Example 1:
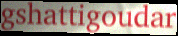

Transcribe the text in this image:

gshattigoudar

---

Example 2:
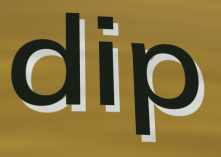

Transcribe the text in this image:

dip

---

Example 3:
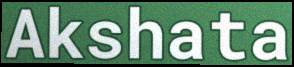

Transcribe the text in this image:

Akshata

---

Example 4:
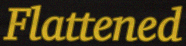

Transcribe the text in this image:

Flattened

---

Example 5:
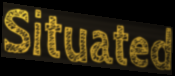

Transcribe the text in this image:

Situated